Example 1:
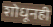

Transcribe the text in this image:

शोधूनही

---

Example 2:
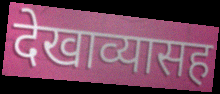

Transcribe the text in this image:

देखाव्यासह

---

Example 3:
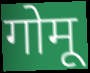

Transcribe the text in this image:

गोमू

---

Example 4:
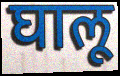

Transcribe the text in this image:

घालू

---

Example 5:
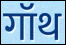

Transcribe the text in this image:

गॉथ